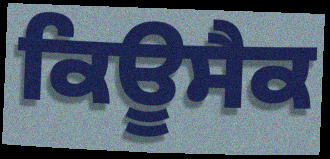
ਕਿਊਸੈਕ